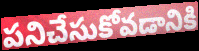
పనిచేసుకోవడానికి